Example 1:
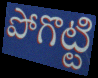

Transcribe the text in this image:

పోగొట్టి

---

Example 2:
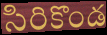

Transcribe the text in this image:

సిరికొండ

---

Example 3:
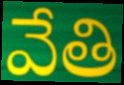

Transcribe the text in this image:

వేతి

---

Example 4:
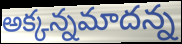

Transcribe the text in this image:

అక్కన్నమాదన్న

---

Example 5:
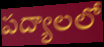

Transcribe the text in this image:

పద్యాలలో